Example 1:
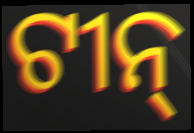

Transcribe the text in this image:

ଟୀନ୍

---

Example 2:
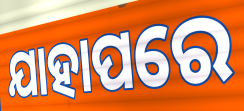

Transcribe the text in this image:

ଯାହାପରେ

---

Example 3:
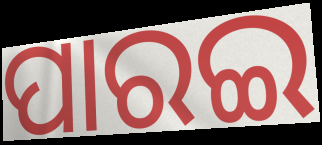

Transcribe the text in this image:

ପାରଇ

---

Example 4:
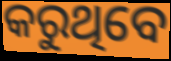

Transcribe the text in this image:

କରୁଥିବେ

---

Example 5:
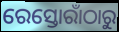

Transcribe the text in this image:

ରେସ୍ତୋରାଁଠାରୁ